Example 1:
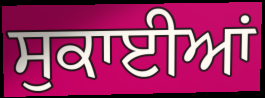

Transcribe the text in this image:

ਸੁਕਾਈਆਂ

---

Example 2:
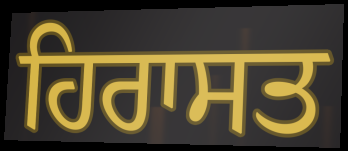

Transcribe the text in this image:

ਹਿਰਾਸਤ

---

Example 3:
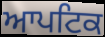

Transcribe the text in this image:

ਆਪਟਿਕ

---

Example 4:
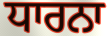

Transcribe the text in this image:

ਧਾਰਨਾ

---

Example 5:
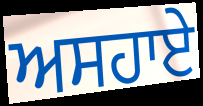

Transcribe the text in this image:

ਅਸਹਾਏ